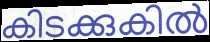
കിടക്കുകിൽ